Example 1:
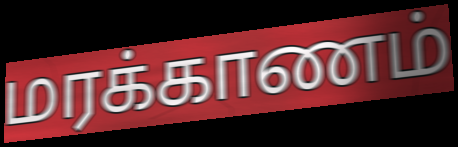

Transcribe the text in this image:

மரக்காணம்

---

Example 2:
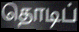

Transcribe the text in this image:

தொடிப்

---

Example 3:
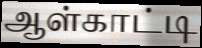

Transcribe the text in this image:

ஆள்காட்டி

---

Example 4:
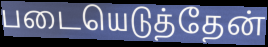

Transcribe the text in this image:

படையெடுத்தேன்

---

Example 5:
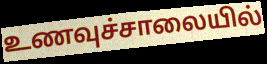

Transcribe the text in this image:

உணவுச்சாலையில்